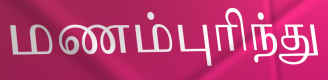
மணம்புரிந்து